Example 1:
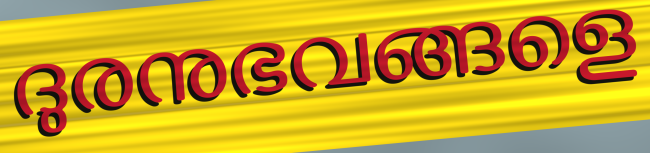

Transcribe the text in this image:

ദുരനുഭവങ്ങളെ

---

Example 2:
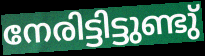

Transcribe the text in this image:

നേരിട്ടിട്ടുണ്ടു്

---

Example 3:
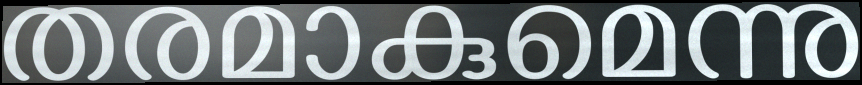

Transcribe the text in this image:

തരമാകുമെന്നു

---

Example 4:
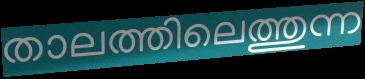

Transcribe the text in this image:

താലത്തിലെത്തുന്ന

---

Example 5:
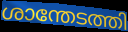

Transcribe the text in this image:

ശാന്തേടത്തി